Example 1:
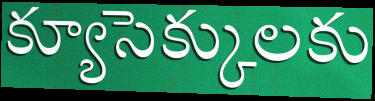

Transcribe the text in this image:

క్యూసెక్కులకు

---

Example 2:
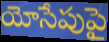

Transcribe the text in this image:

యోసేపుపై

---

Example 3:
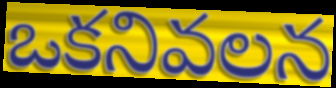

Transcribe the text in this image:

ఒకనివలన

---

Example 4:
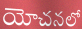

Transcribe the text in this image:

యోచనలో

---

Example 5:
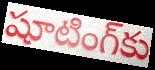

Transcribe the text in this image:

షూటింగ్‌కు